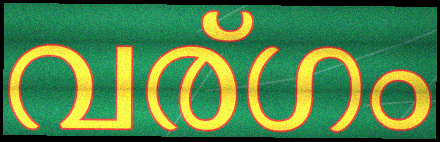
വര്ഗം